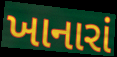
ખાનારાં